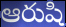
ఆరుషి